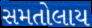
સમતોલાય